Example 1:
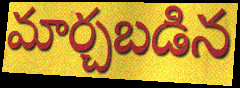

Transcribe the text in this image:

మార్చబడిన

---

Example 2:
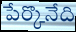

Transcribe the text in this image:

పేర్కొనేది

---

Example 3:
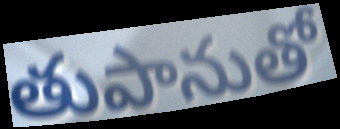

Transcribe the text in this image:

తుపానుతో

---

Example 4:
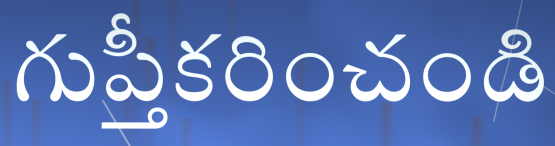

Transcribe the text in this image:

గుప్తీకరించండి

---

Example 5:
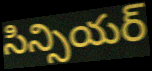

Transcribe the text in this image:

సిన్సియర్